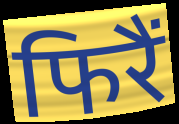
फिरैं